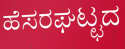
ಹೆಸರಘಟ್ಟದ